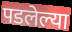
पडलेल्या